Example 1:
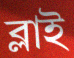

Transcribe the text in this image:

ব্লাই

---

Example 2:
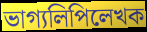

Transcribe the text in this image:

ভাগ্যলিপিলেখক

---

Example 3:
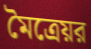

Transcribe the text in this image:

মৈত্রেয়র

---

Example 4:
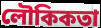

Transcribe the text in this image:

লৌকিকতা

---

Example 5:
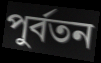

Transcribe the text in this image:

পুর্বতন